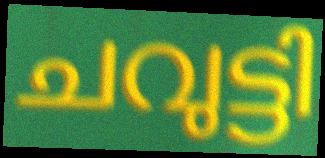
ചവുട്ടി